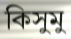
কিসুমু